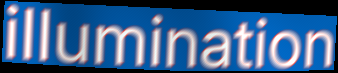
illumination